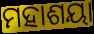
ମହାଶୟା